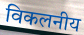
विकलनीय